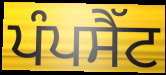
ਪੰਪਸੈੱਟ